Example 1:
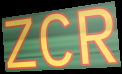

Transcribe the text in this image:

ZCR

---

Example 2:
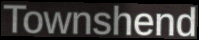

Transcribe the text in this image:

Townshend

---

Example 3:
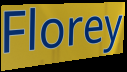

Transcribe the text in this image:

Florey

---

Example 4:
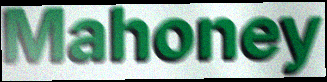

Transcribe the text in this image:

Mahoney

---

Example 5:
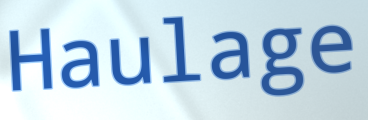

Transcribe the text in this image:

Haulage